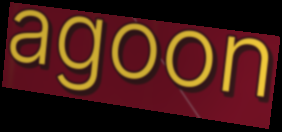
agoon